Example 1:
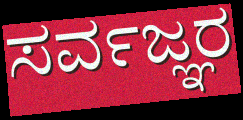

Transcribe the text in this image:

ಸರ್ವಜ್ಞರ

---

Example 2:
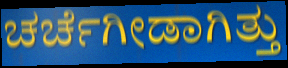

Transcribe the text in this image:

ಚರ್ಚೆಗೀಡಾಗಿತ್ತು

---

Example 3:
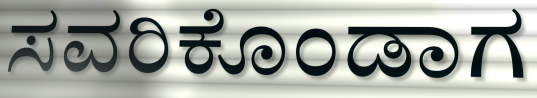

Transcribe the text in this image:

ಸವರಿಕೊಂಡಾಗ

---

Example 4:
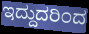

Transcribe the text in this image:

ಇದ್ದುದರಿಂದ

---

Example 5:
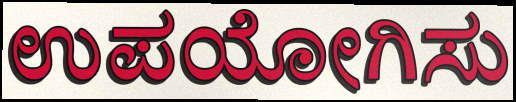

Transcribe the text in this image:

ಉಪಯೋಗಿಸು